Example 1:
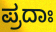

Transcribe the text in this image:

ಪ್ರದಾಃ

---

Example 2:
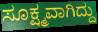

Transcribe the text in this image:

ಸೂಕ್ಷ್ಮವಾಗಿದ್ದು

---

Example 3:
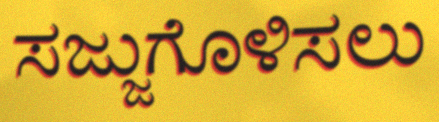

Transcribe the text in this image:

ಸಜ್ಜುಗೊಳಿಸಲು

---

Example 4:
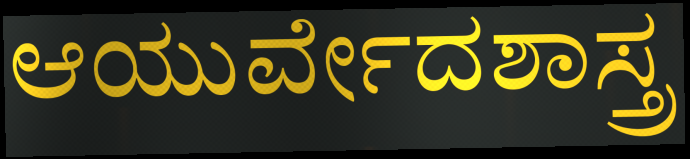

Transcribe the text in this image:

ಆಯುರ್ವೇದಶಾಸ್ತ್ರ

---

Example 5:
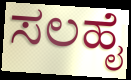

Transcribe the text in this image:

ಸಲಹೈ